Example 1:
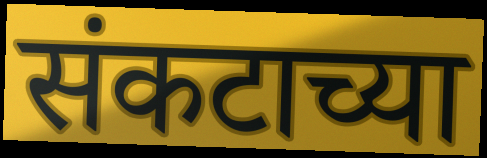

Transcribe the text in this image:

संकटाच्या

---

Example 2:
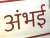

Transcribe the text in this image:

अंभई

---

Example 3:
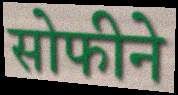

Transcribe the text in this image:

सोफीने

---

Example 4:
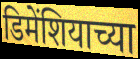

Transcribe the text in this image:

डिमेंशियाच्या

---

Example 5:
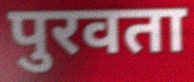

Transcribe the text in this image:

पुरवता